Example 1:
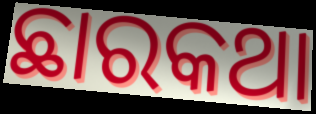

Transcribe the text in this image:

ଛାରକଥା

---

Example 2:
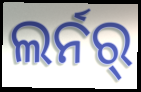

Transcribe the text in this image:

ଲର୍ନର୍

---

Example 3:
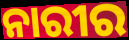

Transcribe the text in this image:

ନାରୀର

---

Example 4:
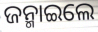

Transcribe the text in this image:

ଜନ୍ମାଇଲେ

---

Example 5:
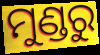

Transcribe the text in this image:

ମୁଣ୍ଡରୁ